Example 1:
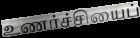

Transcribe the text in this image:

உணர்ச்சியைப்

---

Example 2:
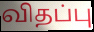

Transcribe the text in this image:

விதப்பு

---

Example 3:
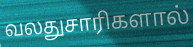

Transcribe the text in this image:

வலதுசாரிகளால்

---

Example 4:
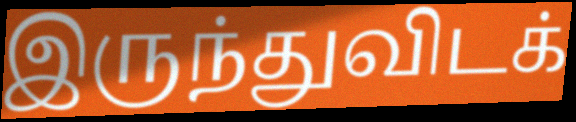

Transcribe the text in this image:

இருந்துவிடக்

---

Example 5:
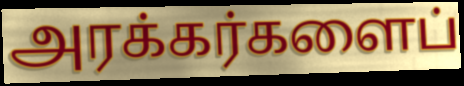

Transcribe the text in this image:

அரக்கர்களைப்